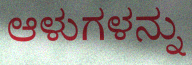
ಆಳುಗಳನ್ನು